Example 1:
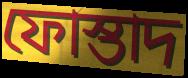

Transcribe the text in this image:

ফোস্তাদ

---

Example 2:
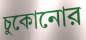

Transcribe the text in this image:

চুকোনোর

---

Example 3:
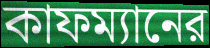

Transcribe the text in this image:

কাফম্যানের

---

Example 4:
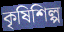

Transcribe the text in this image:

কৃষিশিল্প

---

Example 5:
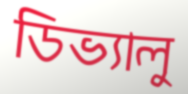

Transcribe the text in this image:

ডিভ্যালু